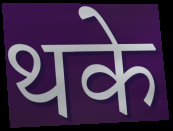
थके